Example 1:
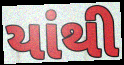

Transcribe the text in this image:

યાંથી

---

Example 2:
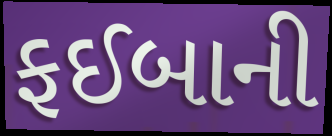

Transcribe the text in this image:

ફઈબાની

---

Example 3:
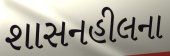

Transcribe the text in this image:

શાસનહીલના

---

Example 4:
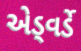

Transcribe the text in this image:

એડ્વર્ડે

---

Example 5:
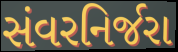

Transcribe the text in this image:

સંવરનિર્જરા